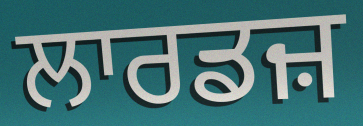
ਲਾਰਡਜ਼